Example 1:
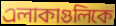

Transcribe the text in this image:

এলাকাগুলিকে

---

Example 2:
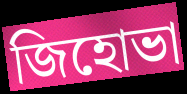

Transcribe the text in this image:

জিহোভা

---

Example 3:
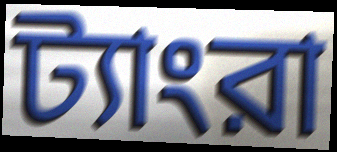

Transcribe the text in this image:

ট্যাংরা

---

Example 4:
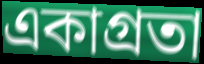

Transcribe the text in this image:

একাগ্রতা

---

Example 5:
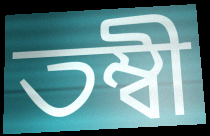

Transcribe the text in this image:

তম্বী